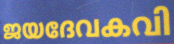
ജയദേവകവി